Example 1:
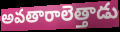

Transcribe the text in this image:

అవతారాలెత్తాడు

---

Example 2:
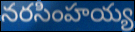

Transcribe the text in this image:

నరసింహయ్య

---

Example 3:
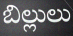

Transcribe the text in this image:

బిల్లులు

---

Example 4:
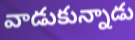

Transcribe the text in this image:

వాడుకున్నాడు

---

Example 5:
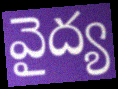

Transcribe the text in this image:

వైద్య